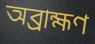
অব্রাহ্মণ